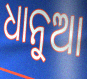
ଧାନୁଆ